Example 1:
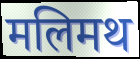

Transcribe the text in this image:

मलिमथ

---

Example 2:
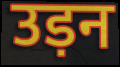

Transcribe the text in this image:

उड़न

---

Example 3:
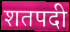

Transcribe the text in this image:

शतपदी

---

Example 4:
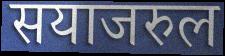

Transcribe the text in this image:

सयाजरुल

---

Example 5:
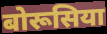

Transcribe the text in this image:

बोरूसिया